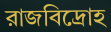
রাজবিদ্রোহ